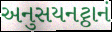
અનુસયનટ્ઠાનં